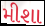
મીશા